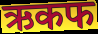
ऋकफ